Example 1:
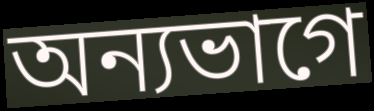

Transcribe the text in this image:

অন্যভাগে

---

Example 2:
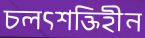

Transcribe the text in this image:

চলৎশক্তিহীন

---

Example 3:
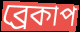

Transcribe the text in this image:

ব্রেকাপ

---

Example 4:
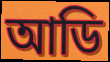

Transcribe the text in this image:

আডি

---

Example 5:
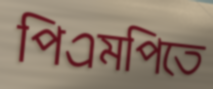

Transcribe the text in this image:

পিএমপিতে